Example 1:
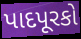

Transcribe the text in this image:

પાદપૂરકો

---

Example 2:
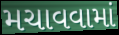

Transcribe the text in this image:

મચાવવામાં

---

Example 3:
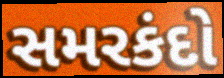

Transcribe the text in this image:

સમરકંદો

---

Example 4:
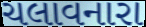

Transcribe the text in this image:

ચલાવનારા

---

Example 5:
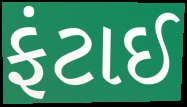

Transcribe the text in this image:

ફંટાઈ